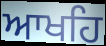
ਆਖਹਿ